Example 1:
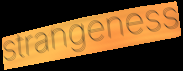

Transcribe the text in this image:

strangeness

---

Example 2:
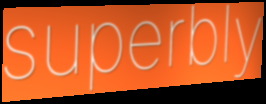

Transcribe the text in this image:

superbly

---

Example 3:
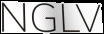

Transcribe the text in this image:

NGLV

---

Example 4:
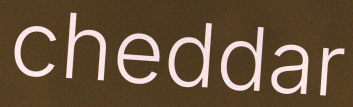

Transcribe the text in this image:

cheddar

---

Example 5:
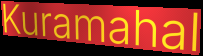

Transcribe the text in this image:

Kuramahal